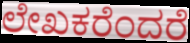
ಲೇಖಕರೆಂದರೆ